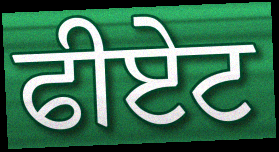
ਫੀਏਟ